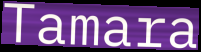
Tamara